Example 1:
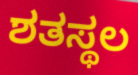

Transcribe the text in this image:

ಶತಸ್ಥಲ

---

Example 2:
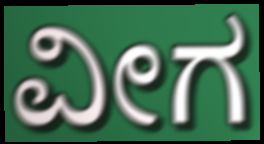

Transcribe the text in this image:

ವೀಗ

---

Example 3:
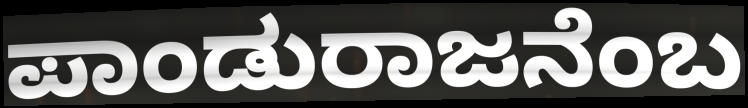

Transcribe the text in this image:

ಪಾಂಡುರಾಜನೆಂಬ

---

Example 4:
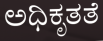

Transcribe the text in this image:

ಅಧಿಕೃತತೆ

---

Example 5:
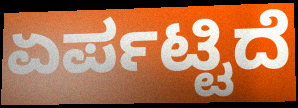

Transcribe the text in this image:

ಏರ್ಪಟ್ಟಿದೆ